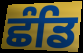
ਛੰਡਿ